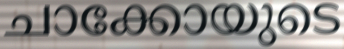
ചാക്കോയുടെ